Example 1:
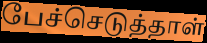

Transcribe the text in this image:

பேச்செடுத்தாள்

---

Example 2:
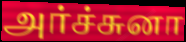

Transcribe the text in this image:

அர்ச்சுனா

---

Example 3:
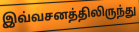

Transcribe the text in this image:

இவ்வசனத்திலிருந்து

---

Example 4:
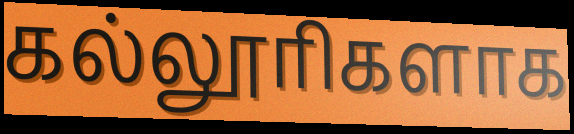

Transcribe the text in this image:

கல்லூரிகளாக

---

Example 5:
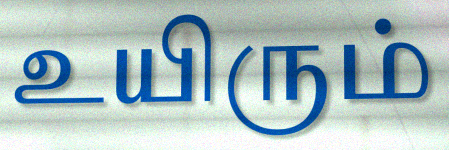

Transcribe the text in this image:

உயிரும்